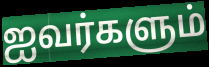
ஐவர்களும்